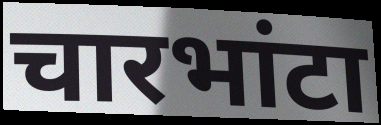
चारभांटा